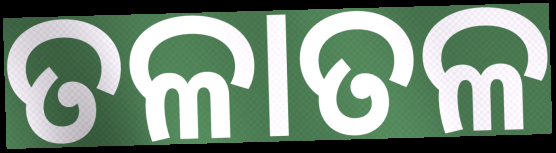
ତଳାତଳ